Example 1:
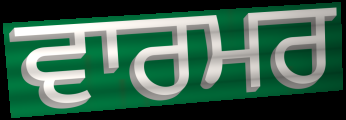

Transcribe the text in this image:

ਵਾਰਮਰ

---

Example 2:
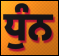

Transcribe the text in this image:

ਧੁੰਨ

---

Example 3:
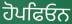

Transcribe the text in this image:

ਹੋਪਫਿਓਨ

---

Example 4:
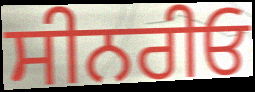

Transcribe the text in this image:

ਸੀਨਰੀਓ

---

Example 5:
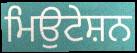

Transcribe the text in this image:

ਮਿਉਟੇਸ਼ਨ